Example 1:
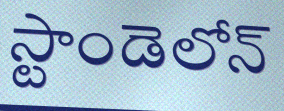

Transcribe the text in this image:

స్టాండెలోన్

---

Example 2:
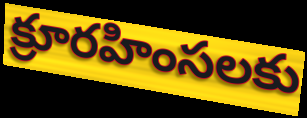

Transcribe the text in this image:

క్రూరహింసలకు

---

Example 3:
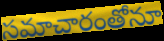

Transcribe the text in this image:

సమాచారంతోనూ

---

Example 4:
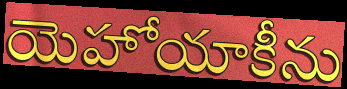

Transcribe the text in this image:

యెహోయాకీను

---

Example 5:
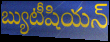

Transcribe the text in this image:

బ్యుటీషియన్